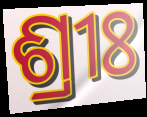
ଶ୍ରୀଃ